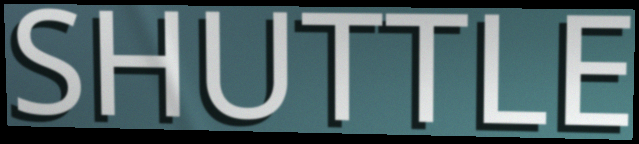
SHUTTLE